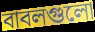
বাবলগুলো